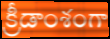
క్రీడాంశంగా